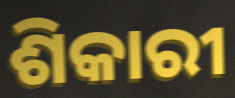
ଶିକାରୀ